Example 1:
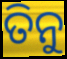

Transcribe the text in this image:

ତିନୁ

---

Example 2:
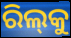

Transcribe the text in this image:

ରିଲ୍‌କୁ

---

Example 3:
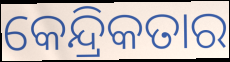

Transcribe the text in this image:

କେନ୍ଦ୍ରିକତାର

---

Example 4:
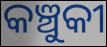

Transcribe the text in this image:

କଞ୍ଚୁକୀ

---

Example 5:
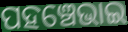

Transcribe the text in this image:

ପହଞ୍ଚେଭାଇ